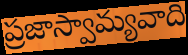
ప్రజాస్వామ్యవాది